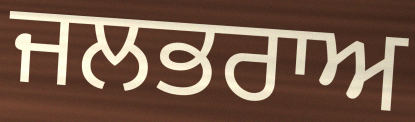
ਜਲਭਰਾਅ